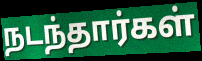
நடந்தார்கள்